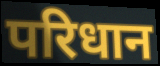
परिधान